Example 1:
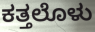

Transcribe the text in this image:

ಕತ್ತಲೊಳು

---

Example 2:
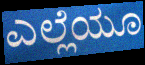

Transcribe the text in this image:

ಎಲ್ಲೆಯೂ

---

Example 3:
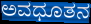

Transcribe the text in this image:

ಅವಧೂತನ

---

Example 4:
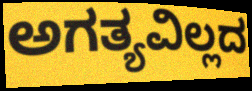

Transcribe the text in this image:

ಅಗತ್ಯವಿಲ್ಲದ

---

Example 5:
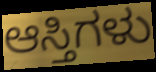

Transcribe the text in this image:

ಆಸ್ತಿಗಳು